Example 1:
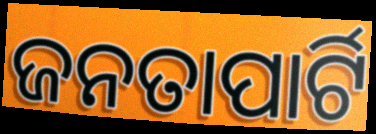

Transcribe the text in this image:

ଜନତାପାର୍ଟି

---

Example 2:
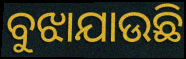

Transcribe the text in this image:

ବୁଝାଯାଉଛି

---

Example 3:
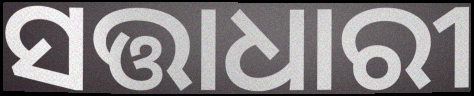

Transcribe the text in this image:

ସତ୍ତାଧାରୀ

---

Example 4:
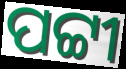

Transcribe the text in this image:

ପଟ୍ଟୀ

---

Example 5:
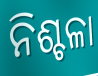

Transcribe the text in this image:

ନିଶ୍ଚଳା